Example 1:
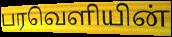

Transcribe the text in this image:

பரவெளியின்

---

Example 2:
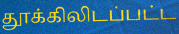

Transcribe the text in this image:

தூக்கிலிடப்பட்ட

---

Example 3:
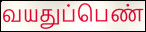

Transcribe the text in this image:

வயதுப்பெண்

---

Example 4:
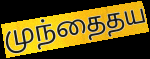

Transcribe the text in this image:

முந்தைதய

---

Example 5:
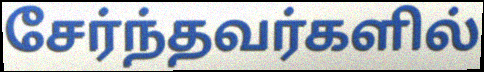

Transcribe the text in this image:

சேர்ந்தவர்களில்